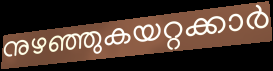
നുഴഞ്ഞുകയറ്റക്കാർ